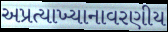
અપ્રત્યાખ્યાનાવરણીય